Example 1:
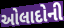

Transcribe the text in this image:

ઓલાદોની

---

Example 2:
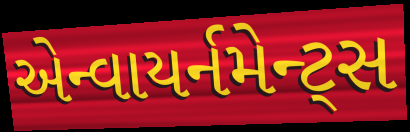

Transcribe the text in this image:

એન્વાયર્નમેન્ટ્સ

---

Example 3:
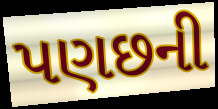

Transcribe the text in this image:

પણછની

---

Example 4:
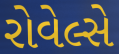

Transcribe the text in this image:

રોવેલ્સે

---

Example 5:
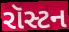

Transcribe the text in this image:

રૉસ્ટન